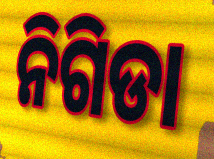
ନିଗିଡା